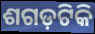
ଶଗଡ଼ଟିକି